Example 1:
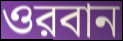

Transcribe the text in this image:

ওরবান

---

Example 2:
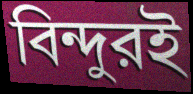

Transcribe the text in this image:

বিন্দুরই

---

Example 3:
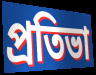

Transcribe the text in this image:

প্রতিভা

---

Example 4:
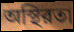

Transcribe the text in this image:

অস্থিরতা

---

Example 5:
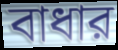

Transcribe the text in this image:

বাধার